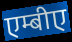
एम्बीए